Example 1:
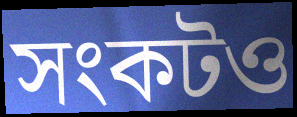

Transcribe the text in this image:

সংকটও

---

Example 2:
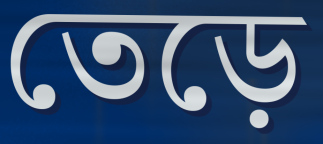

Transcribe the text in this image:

তেড়ে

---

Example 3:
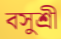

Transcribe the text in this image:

বসুশ্রী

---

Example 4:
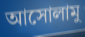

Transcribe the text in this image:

আসোলামু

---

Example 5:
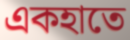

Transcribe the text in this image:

একহাতে